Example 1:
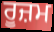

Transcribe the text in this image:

ਰੂਜ਼ਮ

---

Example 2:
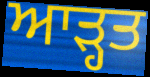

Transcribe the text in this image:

ਆੜ੍ਹਤ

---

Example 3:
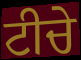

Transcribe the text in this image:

ਟੀਚੇ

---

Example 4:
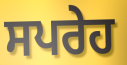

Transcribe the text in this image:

ਸਪਰੇਹ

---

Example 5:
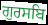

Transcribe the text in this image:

ਗੁਰਸਬਿ